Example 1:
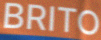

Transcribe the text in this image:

BRITO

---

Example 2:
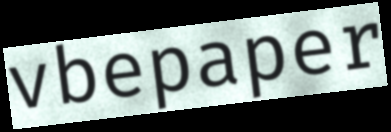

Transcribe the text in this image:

vbepaper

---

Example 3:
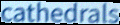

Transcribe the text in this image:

cathedrals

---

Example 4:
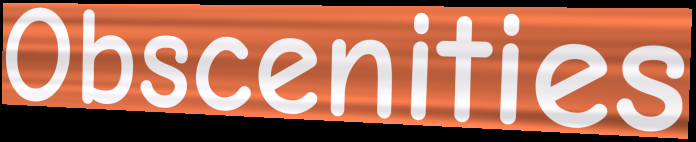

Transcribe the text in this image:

Obscenities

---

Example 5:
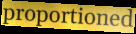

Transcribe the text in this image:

proportioned